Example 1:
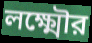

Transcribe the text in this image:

লক্ষ্মৌর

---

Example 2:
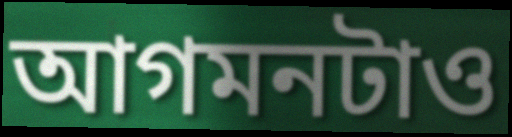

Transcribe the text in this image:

আগমনটাও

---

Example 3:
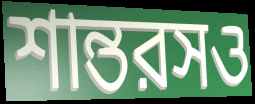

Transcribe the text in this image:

শান্তরসও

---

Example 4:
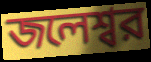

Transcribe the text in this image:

জলেশ্বর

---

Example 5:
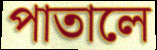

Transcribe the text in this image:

পাতালে